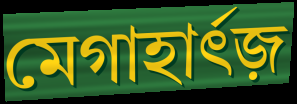
মেগাহার্ৎজ়